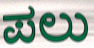
ಪಲು